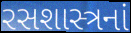
રસશાસ્ત્રનાં